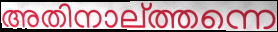
അതിനാല്ത്തന്നെ